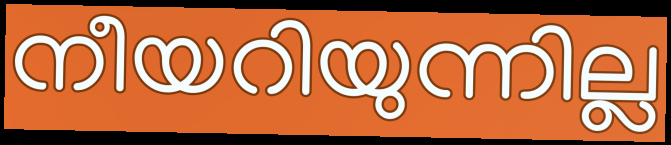
നീയറിയുന്നില്ല